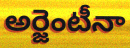
అర్జెంటీనా